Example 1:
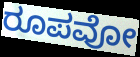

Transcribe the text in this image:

ರೂಪವೋ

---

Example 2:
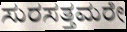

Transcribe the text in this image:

ಸುರಸತ್ತಮರೇ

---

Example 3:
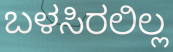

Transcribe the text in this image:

ಬಳಸಿರಲಿಲ್ಲ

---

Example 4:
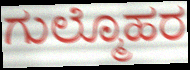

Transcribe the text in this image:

ಗುಲ್ಮೊಹರ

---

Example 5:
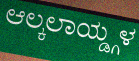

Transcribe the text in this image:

ಆಲ್ಕಲಾಯ್ಡ್ಗಳ